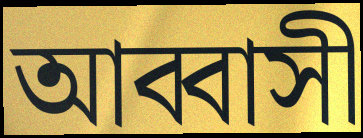
আব্বাসী